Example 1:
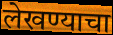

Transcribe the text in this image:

लेखण्याचा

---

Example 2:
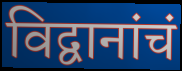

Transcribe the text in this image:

विद्वानांचं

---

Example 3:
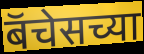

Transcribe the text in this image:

बॅचेसच्या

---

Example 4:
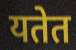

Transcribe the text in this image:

यतेत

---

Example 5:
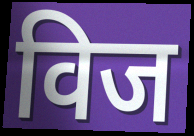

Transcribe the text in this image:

विज